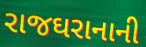
રાજઘરાનાની